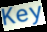
Key